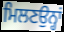
ਮਿਲਣਉਨ੍ਹਾਂ